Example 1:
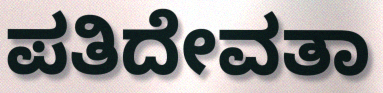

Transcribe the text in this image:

ಪತಿದೇವತಾ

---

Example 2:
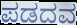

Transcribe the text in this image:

ಪಡದವ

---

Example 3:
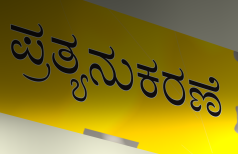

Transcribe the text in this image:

ಪ್ರತ್ಯನುಕರಣೆ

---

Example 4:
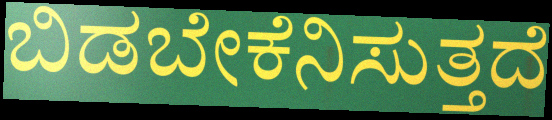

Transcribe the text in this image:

ಬಿಡಬೇಕೆನಿಸುತ್ತದೆ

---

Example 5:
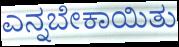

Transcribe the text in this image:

ಎನ್ನಬೇಕಾಯಿತು